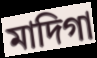
মাদিগা